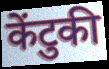
केंटुकी